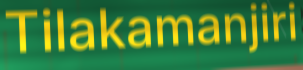
Tilakamanjiri